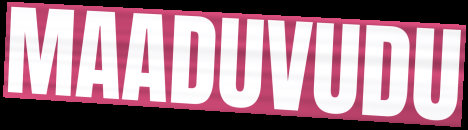
MAADUVUDU